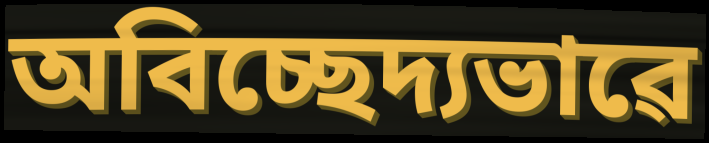
অবিচ্ছেদ্যভাৱে